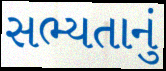
સભ્યતાનું